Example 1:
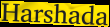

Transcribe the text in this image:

Harshada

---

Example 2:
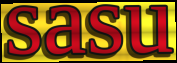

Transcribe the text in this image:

sasu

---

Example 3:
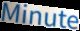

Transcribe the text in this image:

Minute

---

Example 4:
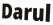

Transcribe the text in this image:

Darul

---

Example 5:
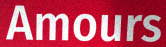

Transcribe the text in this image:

Amours